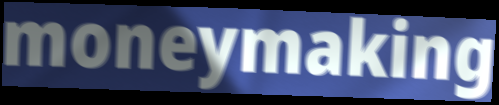
moneymaking